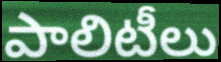
పాలిటీలు